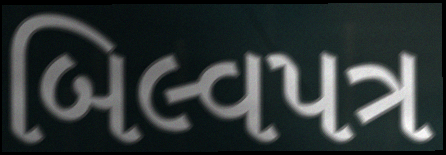
બિલ્વપત્ર